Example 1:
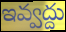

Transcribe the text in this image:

ఇవ్వద్దు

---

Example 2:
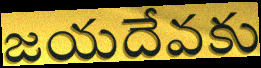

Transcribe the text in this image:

జయదేవకు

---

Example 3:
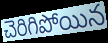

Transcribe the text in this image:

చెరిగిపోయిన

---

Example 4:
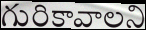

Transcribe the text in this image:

గురికావాలని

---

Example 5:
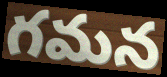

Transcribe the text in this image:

గమన